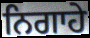
ਨਿਗਾਹੇ